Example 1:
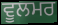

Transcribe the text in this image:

ਵੂਲਮਰ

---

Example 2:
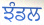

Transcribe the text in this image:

ਝੰਡਲ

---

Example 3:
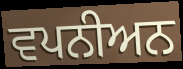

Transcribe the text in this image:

ਵਪਨੀਅਨ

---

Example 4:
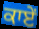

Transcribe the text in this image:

ਕਾਏਂ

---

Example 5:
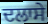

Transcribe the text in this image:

ਦਲਾਸੇ